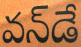
వన్‌డే